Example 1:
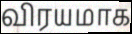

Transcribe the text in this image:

விரயமாக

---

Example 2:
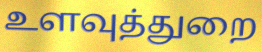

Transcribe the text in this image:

உளவுத்துறை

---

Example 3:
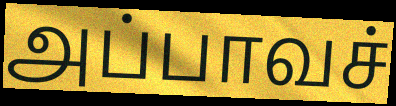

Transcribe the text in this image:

அப்பாவச்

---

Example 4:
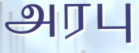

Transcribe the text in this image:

அரபு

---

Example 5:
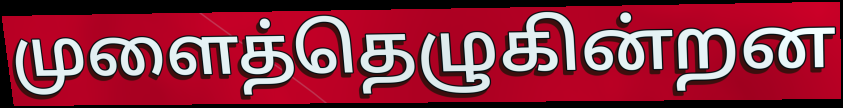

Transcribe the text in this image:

முளைத்தெழுகின்றன